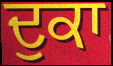
ਦੁਕਾ